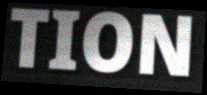
TION